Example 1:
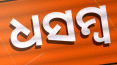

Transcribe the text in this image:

ଧସମ୍ବ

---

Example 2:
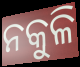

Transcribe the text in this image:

ନକୁଳି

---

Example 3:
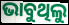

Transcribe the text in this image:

ଭାବୁଥିଲୁ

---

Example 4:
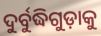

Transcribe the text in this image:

ଦୁର୍ବୁଦ୍ଧିଗୁଡ଼ାକୁ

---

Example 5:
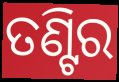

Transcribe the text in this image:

ତଣ୍ଟିର